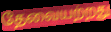
தேவையற்றது